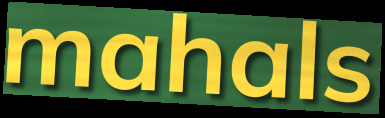
mahals